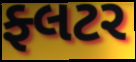
ફ્લટર